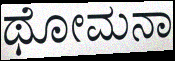
ಥೋಮನಾ